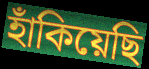
হাঁকিয়েছি